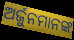
ଅର୍ଜୁନମାନଙ୍କ